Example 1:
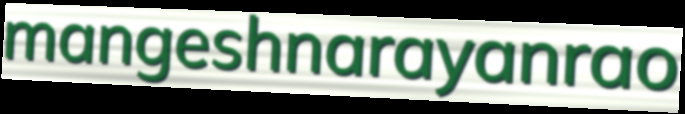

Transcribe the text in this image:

mangeshnarayanrao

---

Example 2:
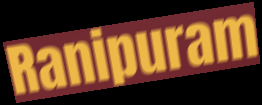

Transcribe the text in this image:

Ranipuram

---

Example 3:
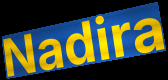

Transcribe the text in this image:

Nadira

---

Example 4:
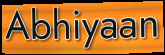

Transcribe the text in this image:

Abhiyaan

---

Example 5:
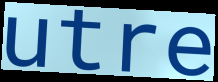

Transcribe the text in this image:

utre